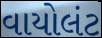
વાયોલંટ